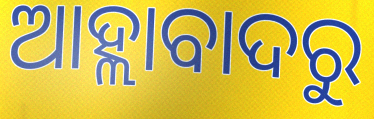
ଆହ୍ଲାବାଦରୁ